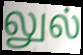
லுல்